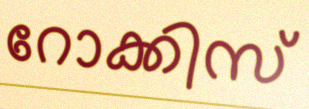
റോക്കിസ്